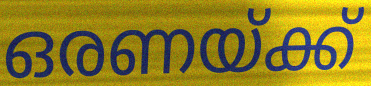
ഒരണയ്ക്ക്